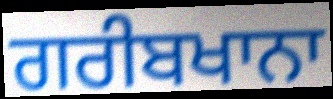
ਗਰੀਬਖਾਨਾ